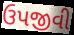
ઉપજીવી